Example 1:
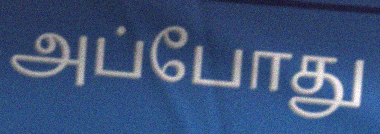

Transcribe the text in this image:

அப்போது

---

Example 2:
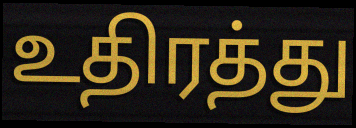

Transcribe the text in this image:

உதிரத்து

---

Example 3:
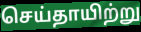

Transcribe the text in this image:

செய்தாயிற்று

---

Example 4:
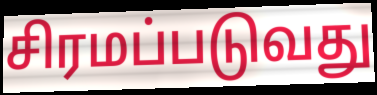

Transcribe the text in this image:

சிரமப்படுவது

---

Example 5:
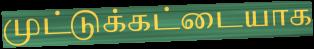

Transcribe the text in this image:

முட்டுக்கட்டையாக